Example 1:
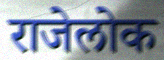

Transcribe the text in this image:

राजेलोक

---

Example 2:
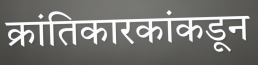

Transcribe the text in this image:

क्रांतिकारकांकडून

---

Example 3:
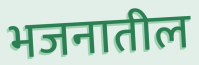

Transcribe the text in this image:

भजनातील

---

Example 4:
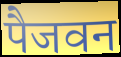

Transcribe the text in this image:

पैजवन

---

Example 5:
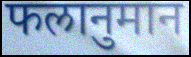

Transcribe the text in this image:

फलानुमान